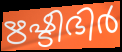
ഋഷ്ടിഭിർ